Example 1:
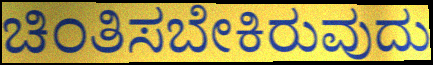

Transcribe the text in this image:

ಚಿಂತಿಸಬೇಕಿರುವುದು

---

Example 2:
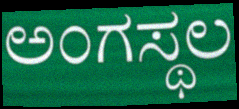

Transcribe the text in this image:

ಅಂಗಸ್ಥಲ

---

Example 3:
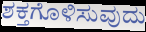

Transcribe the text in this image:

ಶಕ್ತಗೊಳಿಸುವುದು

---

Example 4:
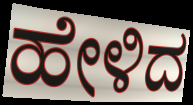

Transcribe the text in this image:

ಹೇಳಿದ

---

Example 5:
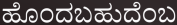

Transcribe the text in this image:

ಹೊಂದಬಹುದೆಂಬ